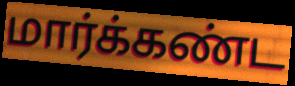
மார்க்கண்ட